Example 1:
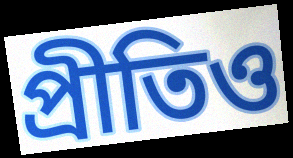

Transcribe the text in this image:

প্রীতিও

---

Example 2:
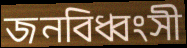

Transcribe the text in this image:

জনবিধ্বংসী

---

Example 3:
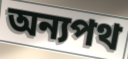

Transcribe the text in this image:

অন্যপথ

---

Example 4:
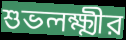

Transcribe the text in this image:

শুভলক্ষ্মীর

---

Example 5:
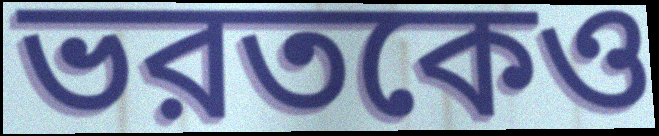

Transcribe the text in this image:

ভরতকেও